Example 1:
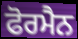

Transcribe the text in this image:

ਫੋਰਮੈਨ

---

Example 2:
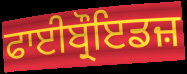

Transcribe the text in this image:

ਫਾਈਬ੍ਰੌਇਡਜ਼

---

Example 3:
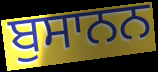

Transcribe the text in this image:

ਬੁਸਾਨਨ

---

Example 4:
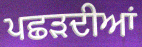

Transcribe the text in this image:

ਪਛੜਦੀਆਂ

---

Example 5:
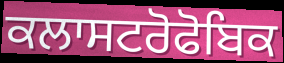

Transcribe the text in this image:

ਕਲਾਸਟਰੋਫੋਬਿਕ